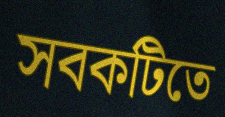
সবকটিতে